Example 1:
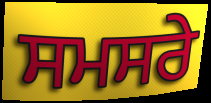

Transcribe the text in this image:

ਸਮਸਰੇ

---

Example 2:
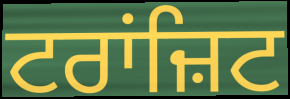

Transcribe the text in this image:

ਟਰਾਂਜ਼ਿਟ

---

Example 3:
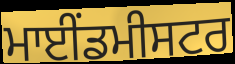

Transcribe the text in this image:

ਮਾਈਂਡਮੀਸਟਰ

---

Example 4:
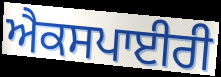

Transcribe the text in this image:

ਐਕਸਪਾਈਰੀ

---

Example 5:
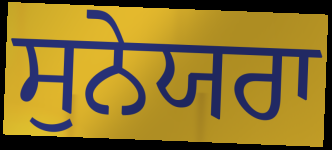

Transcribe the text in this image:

ਸੁਨੇਯਰਾ